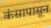
कंसापासून